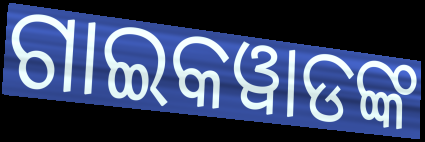
ଗାଇକୱାଡଙ୍କ